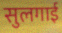
सुलगाई